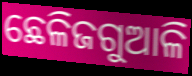
ଛେଳିଜଗୁଆଳି